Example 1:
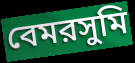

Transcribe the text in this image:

বেমরসুমি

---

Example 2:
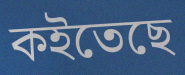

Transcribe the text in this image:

কইতেছে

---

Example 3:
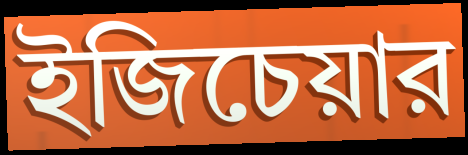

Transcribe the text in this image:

ইজিচেয়ার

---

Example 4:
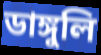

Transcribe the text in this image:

ডাঙ্গুলি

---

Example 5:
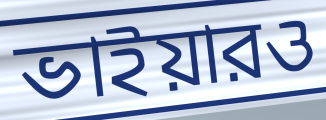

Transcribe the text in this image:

ভাইয়ারও